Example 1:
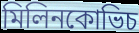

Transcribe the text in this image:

মিলিনকোভিচ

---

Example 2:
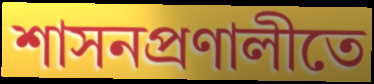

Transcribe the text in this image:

শাসনপ্রণালীতে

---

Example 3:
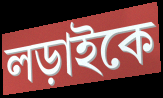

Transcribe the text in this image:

লড়াইকে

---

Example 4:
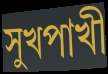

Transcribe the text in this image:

সুখপাখী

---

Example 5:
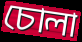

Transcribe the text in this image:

চোলা